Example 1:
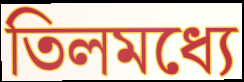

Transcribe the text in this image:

তিলমধ্যে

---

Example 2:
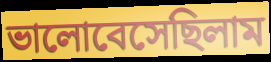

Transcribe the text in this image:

ভালোবেসেছিলাম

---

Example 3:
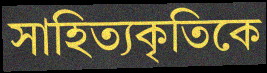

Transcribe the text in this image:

সাহিত্যকৃতিকে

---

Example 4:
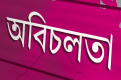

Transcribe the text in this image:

অবিচলতা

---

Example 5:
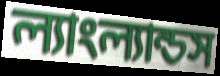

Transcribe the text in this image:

ল্যাংল্যান্ডস